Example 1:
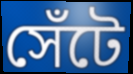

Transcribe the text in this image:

সেঁটে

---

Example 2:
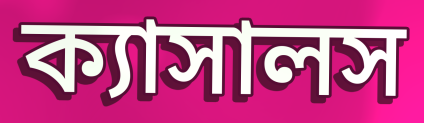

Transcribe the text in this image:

ক্যাসালস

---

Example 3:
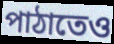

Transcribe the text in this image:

পাঠাতেও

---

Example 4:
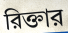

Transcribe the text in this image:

রিক্তার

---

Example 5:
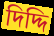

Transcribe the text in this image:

দিদ্দি